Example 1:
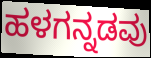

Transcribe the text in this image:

ಹಳಗನ್ನಡವು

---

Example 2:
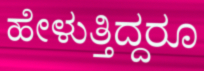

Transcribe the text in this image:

ಹೇಳುತ್ತಿದ್ದರೂ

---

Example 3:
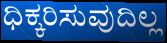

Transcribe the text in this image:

ಧಿಕ್ಕರಿಸುವುದಿಲ್ಲ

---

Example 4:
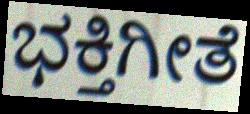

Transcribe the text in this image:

ಭಕ್ತಿಗೀತೆ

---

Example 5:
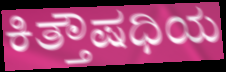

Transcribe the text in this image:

ಕಿತ್ತೌಷಧಿಯ